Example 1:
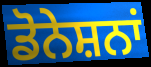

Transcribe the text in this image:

ਡੋਨੇਸ਼ਨਾਂ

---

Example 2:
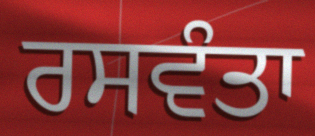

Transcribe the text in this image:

ਰਸਵੰਤਾ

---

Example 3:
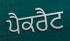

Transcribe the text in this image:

ਪੈਕਰੈਟ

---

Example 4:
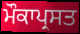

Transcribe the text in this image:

ਮੌਕਾਪ੍ਰਸਤ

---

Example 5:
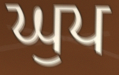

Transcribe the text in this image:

ਘੁਪ